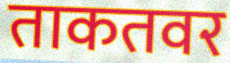
ताकतवर